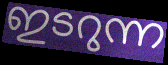
ഇടറുന്ന